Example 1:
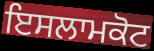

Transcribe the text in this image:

ਇਸਲਾਮਕੋਟ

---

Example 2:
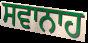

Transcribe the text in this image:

ਸਵਾਨਾਹ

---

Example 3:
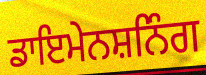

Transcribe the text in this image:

ਡਾਇਮੇਨਸ਼ਨਿੰਗ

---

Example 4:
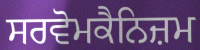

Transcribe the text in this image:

ਸਰਵੋਮਕੈਨਿਜ਼ਮ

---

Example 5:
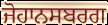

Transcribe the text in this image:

ਜੋਹਾਨਸਬਰਗ